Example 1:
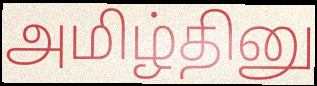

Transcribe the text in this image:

அமிழ்தினு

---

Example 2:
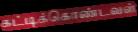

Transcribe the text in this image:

கட்டிக்கொண்டவள்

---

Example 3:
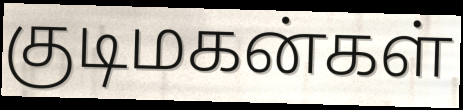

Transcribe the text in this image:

குடிமகன்கள்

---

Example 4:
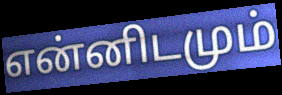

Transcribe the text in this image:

என்னிடமும்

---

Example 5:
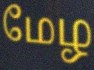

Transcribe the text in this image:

மேழ